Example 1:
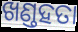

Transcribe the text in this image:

ଖଣ୍ଡହତା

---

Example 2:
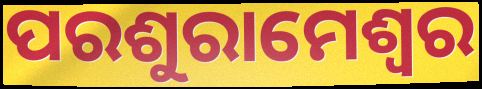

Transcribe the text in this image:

ପରଶୁରାମେଶ୍ୱର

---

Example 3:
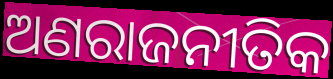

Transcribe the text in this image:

ଅଣରାଜନୀତିକ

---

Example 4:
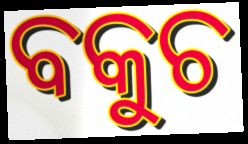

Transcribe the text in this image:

ବକୁଚ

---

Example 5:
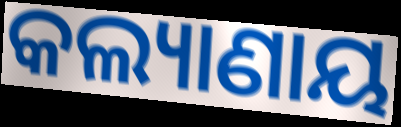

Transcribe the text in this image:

କଲ୍ୟାଣାୟ